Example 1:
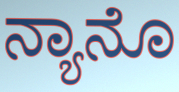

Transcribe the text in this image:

ನ್ಯಾನೊ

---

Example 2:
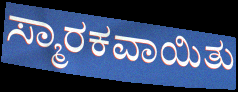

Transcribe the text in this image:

ಸ್ಮಾರಕವಾಯಿತು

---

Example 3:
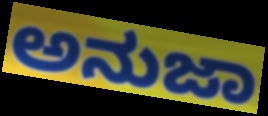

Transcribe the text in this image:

ಅನುಜಾ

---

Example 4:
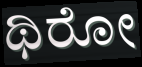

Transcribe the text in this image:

ಥಿರೋ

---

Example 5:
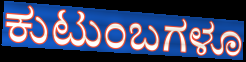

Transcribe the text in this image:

ಕುಟುಂಬಗಳೂ